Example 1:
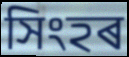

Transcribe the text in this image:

সিংহৰ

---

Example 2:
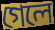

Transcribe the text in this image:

গেলে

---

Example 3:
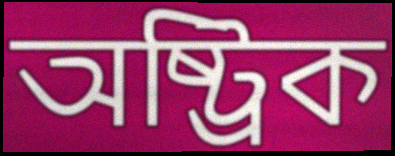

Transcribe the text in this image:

অষ্ট্ৰিক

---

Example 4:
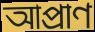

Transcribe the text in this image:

আপ্ৰাণ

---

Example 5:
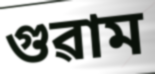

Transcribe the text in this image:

গুৱাম